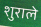
शुराले